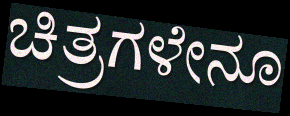
ಚಿತ್ರಗಳೇನೂ